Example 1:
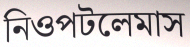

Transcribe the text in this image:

নিওপটলেমাস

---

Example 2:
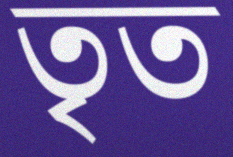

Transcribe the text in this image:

তৃত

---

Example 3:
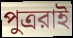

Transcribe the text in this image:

পুত্ররাই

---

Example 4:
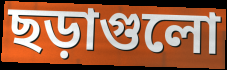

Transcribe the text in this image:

ছড়াগুলো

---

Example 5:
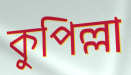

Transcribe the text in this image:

কুপিল্লা